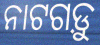
ନାଟଗଡ଼ୁ